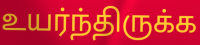
உயர்ந்திருக்க